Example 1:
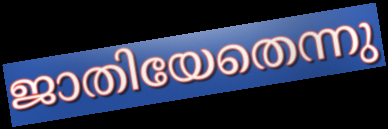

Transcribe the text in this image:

ജാതിയേതെന്നു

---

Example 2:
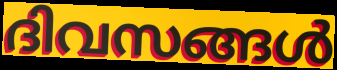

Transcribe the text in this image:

ദിവസങ്ങൾ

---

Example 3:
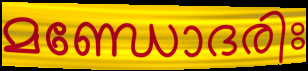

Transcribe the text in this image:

മണ്ഡോദരിഃ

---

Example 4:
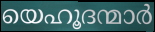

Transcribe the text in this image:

യെഹൂദന്മാർ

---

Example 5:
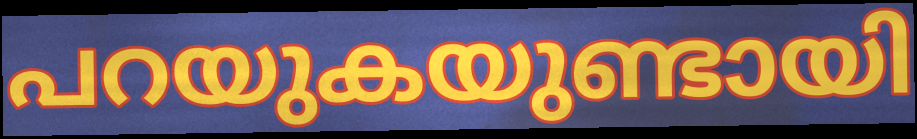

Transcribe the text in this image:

പറയുകയുണ്ടായി